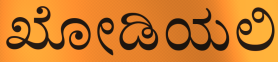
ಖೋಡಿಯಲಿ